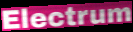
Electrum